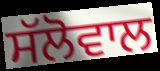
ਸੱਲੋਵਾਲ